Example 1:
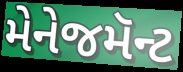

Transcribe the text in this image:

મેનેજમૅન્ટ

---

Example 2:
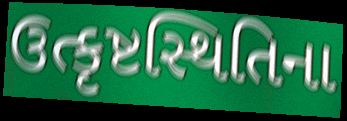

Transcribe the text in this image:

ઉત્કૃષ્ટસ્થિતિના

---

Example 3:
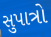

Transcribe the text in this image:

સુપાત્રો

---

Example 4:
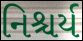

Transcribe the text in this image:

નિશ્ચર્ય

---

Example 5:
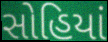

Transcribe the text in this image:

સોહિયાં